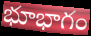
భూభాగం